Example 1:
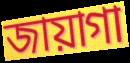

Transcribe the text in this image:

জায়াগা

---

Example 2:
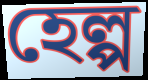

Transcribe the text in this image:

হেল্প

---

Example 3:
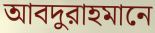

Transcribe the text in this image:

আবদুরাহমানে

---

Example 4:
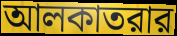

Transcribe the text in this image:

আলকাতরার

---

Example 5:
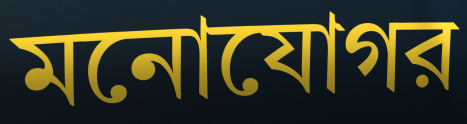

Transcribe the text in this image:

মনোযোগর